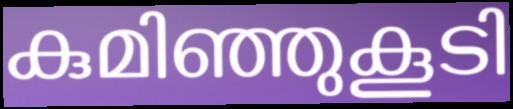
കുമിഞ്ഞുകൂടി